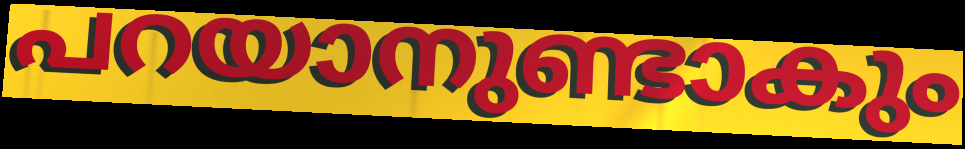
പറയാനുണ്ടാകും